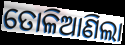
ତୋଳିଆଣିଲା